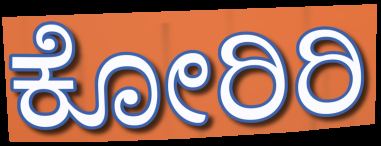
ಕೋರಿರಿ